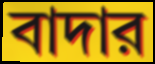
বাদার